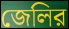
জেলির